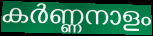
കർണ്ണനാളം